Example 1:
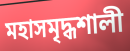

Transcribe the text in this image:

মহাসমৃদ্ধশালী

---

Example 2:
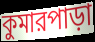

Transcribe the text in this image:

কুমারপাড়া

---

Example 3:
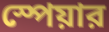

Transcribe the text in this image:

স্পেয়ার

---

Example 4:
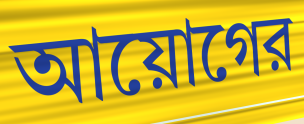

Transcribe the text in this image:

আয়োগের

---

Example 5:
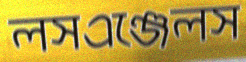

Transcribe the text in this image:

লসএঞ্জেলস